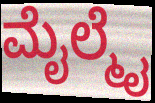
ಮೈಲ್ಮೈ